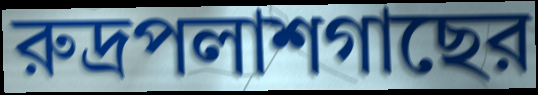
রুদ্রপলাশগাছের